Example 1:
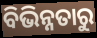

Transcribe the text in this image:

ବିଭିନ୍ନତାରୁ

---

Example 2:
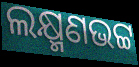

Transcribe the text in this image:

ଲକ୍ଷ୍ମଣଭଟ୍ଟ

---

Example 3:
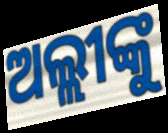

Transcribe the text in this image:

ଅଲ୍ଲୀଙ୍କୁ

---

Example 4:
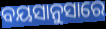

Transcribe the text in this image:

ବୟସାନୁସାରେ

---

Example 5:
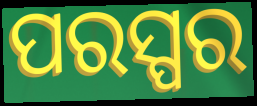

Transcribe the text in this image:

ପରସ୍ପର